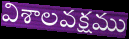
విశాలవక్షము